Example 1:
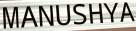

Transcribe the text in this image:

MANUSHYA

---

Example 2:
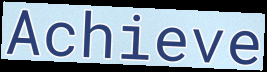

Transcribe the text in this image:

Achieve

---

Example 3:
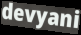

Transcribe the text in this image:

devyani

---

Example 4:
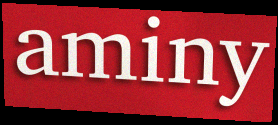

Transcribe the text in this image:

aminy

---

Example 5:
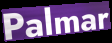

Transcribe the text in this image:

Palmar